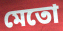
মেতো